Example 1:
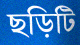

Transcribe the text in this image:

ছড়িটি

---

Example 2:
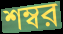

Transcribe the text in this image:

শম্বর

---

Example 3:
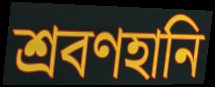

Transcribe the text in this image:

শ্রবণহানি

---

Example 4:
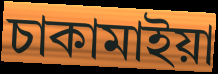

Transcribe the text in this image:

চাকামাইয়া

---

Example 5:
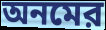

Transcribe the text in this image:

অনমের